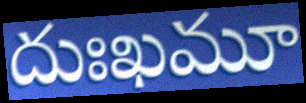
దుఃఖమూ